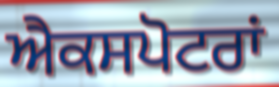
ਐਕਸਪੋਟਰਾਂ